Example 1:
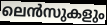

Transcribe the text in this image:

ലെൻസുകളും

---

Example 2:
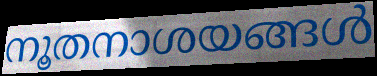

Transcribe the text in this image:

നൂതനാശയങ്ങൾ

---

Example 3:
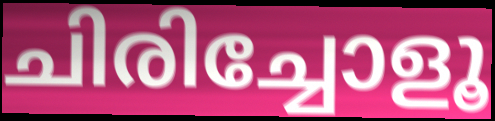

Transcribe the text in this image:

ചിരിച്ചോളൂ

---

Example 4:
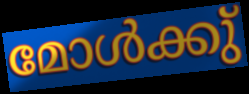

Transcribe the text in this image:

മോൾക്കു്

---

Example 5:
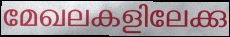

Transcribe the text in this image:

മേഖലകളിലേക്കു